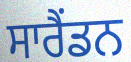
ਸਾਰੈਂਡਨ